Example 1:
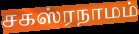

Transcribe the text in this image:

சகஸ்ரநாமம்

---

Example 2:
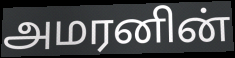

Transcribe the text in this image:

அமரனின்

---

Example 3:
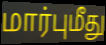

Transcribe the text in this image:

மார்புமீது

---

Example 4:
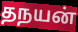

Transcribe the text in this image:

தநயன்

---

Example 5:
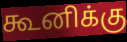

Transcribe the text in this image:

கூனிக்கு